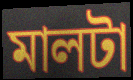
মালটা